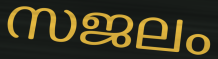
സജലം